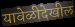
यावेळीदेखील